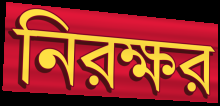
নিরক্ষর